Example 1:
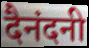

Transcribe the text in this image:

दैनंदनी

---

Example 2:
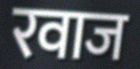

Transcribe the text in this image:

रवाज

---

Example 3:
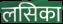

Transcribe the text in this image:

लसिका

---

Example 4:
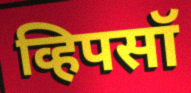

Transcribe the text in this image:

व्हिपसॉ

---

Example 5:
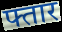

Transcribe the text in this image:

फ्तार